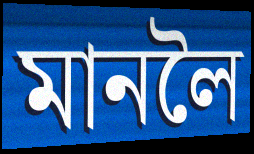
মানলৈ